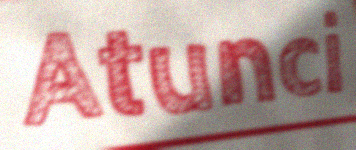
Atunci